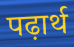
पढ़ार्थ